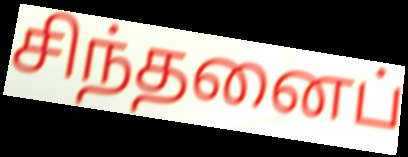
சிந்தனைப்